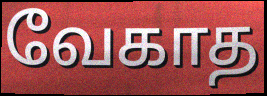
வேகாத